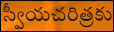
స్వీయచరిత్రకు